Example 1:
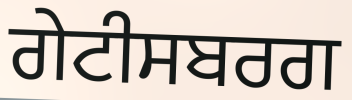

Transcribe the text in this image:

ਗੇਟੀਸਬਰਗ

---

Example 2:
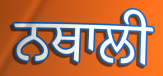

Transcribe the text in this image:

ਨਥਾਲੀ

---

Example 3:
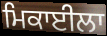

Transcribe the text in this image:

ਮਿਕਾਈਲਾ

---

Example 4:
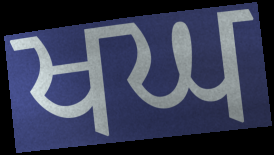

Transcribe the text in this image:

ਖਘ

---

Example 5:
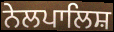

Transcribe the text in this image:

ਨੇਲਪਾਲਿਸ਼